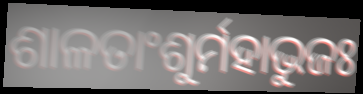
ଶାଳତାଂଶୁର୍ମହାଭୁଜଃ